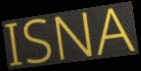
ISNA